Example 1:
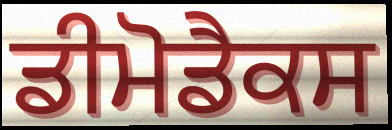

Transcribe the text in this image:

ਡੀਮੋਡੈਕਸ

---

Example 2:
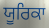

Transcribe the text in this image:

ਯੂਰਿਕਾ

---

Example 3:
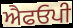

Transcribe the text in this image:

ਐਫਓਪੀ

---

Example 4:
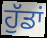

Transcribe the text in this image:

ਹੁੱਡਾਂ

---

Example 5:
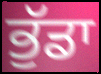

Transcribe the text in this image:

ਭੁੱਡਾ